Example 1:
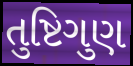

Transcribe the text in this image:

તુષ્ટિગુણ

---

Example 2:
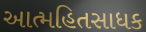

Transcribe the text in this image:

આત્મહિતસાધક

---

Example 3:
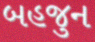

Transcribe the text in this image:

બહજુન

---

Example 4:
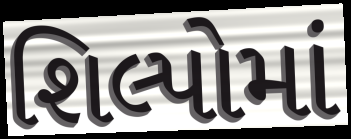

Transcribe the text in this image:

શિલ્પોમાં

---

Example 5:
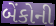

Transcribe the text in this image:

બેંકોની